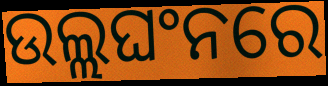
ଉଲ୍ଲଘଂନରେ